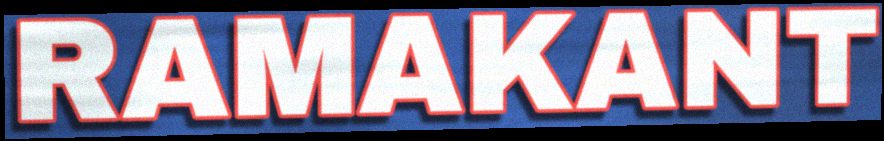
RAMAKANT